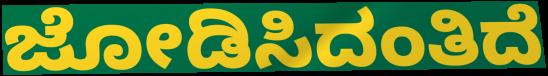
ಜೋಡಿಸಿದಂತಿದೆ